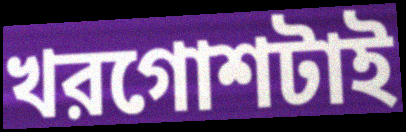
খরগোশটাই